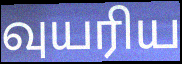
வுயரிய